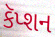
કૅપ્શન